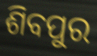
ଶିବପୁର